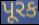
પૂરક